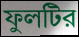
ফুলটির